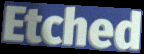
Etched